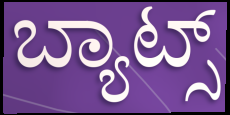
ಬ್ಯಾಟ್ಸ್